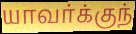
யாவர்க்குந்